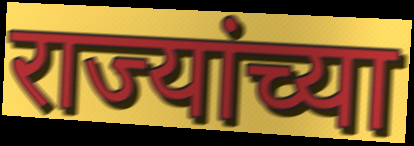
राज्यांच्या